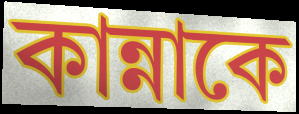
কান্নাকে